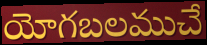
యోగబలముచే